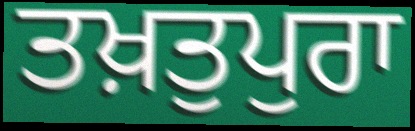
ਤਖ਼ਤੁਪੁਰਾ